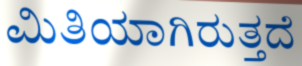
ಮಿತಿಯಾಗಿರುತ್ತದೆ